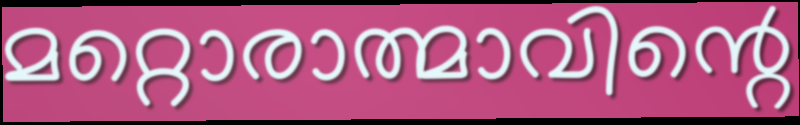
മറ്റൊരാത്മാവിന്റെ